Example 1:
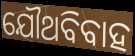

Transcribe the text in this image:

ଯୌଥବିବାହ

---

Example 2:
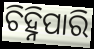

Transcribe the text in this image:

ଚିହ୍ନିପାରି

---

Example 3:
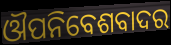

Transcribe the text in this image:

ଔପନିବେଶବାଦର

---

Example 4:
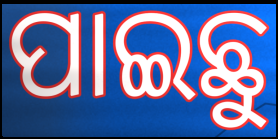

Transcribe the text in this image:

ପାଇଛୁ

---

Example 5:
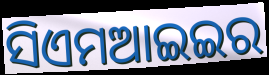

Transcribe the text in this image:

ସିଏମଆଇଇର